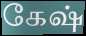
கேஷ்